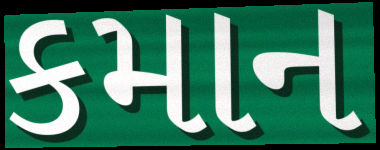
કમાન